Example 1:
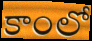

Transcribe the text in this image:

కాంలో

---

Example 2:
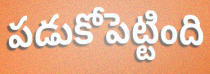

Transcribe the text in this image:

పడుకోపెట్టింది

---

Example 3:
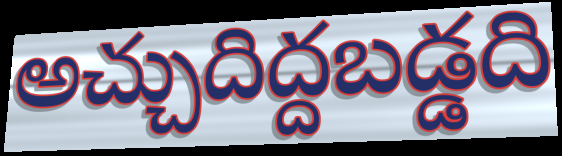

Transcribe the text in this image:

అచ్చుదిద్దబడ్డది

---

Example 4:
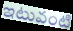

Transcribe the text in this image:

ఇటువంటి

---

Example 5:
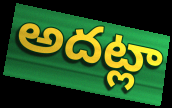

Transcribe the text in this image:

అదట్లా